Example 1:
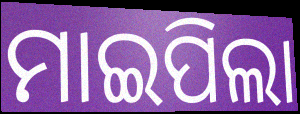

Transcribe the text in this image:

ମାଇପିଲା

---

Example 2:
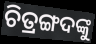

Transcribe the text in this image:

ଚିତ୍ରଙ୍ଗଦଙ୍କୁ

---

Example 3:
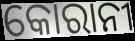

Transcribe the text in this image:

କୋରାନୀ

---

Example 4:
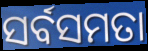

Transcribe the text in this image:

ସର୍ବସମତା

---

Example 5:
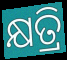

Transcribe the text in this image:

କ୍ଷତ୍ରି